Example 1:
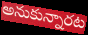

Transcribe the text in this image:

అనుకున్నారట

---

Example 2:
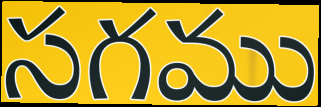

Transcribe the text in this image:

సగము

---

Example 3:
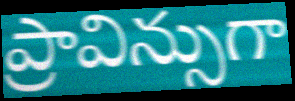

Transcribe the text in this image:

ప్రావిన్సుగా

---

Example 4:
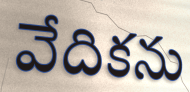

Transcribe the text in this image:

వేదికను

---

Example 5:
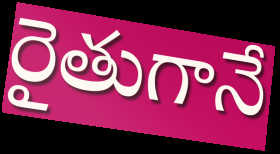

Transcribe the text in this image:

రైతుగానే